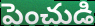
పెంచుడి